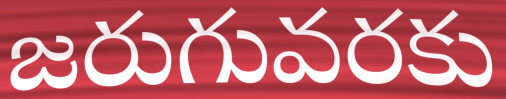
జరుగువరకు